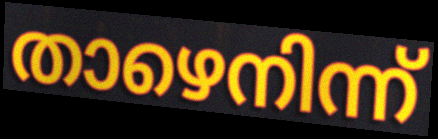
താഴെനിന്ന്